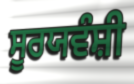
ਸੂਰਯਵੰਸ਼ੀ